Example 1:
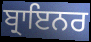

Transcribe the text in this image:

ਬ੍ਰਾਇਨਰ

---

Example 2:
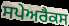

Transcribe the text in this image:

ਸਪੇਅਰੈਕਸ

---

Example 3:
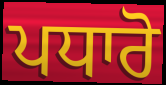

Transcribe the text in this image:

ਪਧਾਰੋ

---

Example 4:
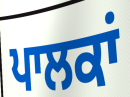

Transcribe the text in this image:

ਪਾਲਕਾਂ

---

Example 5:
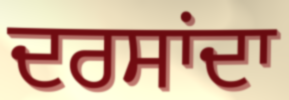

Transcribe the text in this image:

ਦਰਸਾਂਦਾ